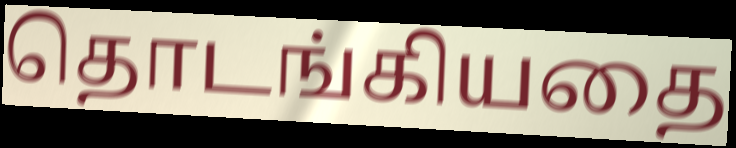
தொடங்கியதை